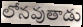
లోనవుతాడు